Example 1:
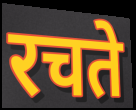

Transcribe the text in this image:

रचते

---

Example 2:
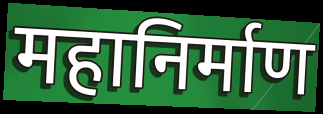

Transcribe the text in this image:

महानिर्माण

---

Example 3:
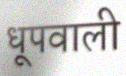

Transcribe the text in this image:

धूपवाली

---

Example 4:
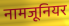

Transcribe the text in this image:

नामजूनियर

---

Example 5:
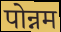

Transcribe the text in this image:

पोन्नम